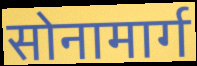
सोनामार्ग